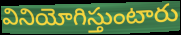
వినియోగిస్తుంటారు